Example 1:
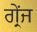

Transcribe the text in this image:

ਗ੍ਰੇਂਜ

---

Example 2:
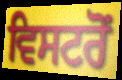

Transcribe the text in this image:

ਵਿਸਟਰੋਂ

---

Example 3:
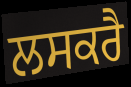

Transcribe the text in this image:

ਲਸਕਰੈ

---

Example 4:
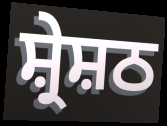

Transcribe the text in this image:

ਸ਼੍ਰੇਸ਼ਠ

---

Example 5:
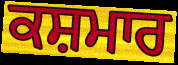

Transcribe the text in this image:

ਕਸ਼ਮਾਰ